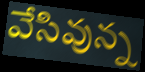
వేసివున్న